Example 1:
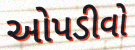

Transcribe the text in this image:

ઓપડીવો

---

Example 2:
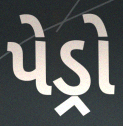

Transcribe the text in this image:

પેડ્રો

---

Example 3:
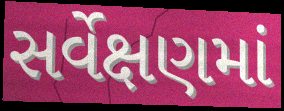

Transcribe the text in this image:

સર્વેક્ષણમાં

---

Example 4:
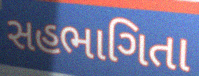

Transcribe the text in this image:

સહભાગિતા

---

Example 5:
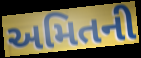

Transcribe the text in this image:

અમિતની